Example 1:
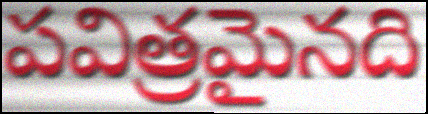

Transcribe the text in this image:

పవిత్రమైనది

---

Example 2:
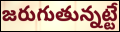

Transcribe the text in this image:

జరుగుతున్నట్టే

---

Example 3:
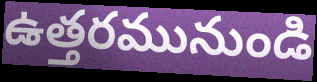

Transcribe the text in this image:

ఉత్తరమునుండి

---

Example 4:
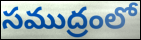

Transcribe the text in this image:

సముద్రంలో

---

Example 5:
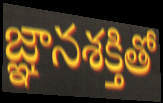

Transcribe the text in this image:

జ్ఞానశక్తితో